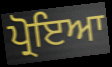
ਪ੍ਰੋਇਆ